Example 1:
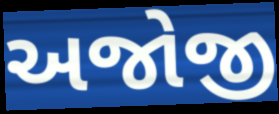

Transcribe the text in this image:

અજોજી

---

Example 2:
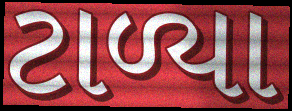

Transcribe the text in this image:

ટાળ્યા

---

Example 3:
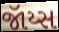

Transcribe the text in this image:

જૉય્સ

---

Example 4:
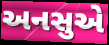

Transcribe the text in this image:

અનસુએ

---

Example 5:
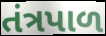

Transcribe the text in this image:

તંત્રપાળ